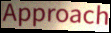
Approach